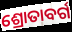
ଶ୍ରୋତାବର୍ଗ